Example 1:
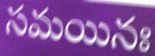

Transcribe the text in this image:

సమయినః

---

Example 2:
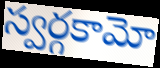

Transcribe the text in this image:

స్వర్గకామో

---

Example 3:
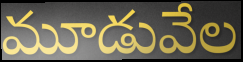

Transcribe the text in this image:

మూడువేల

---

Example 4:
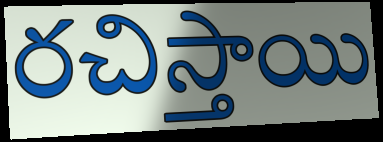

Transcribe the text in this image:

రచిస్తాయి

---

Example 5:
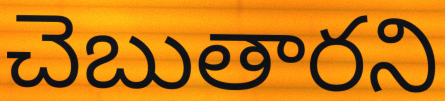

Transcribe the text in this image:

చెబుతారని